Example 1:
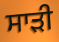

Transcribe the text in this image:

ਸਾੜੀ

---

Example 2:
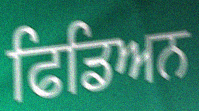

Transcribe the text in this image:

ਫਿਡਿਅਨ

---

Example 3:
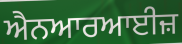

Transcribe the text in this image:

ਐਨਆਰਆਈਜ਼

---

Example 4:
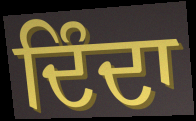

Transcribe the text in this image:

ਦਿੰਦਾ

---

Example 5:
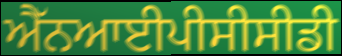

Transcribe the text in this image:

ਐੱਨਆਈਪੀਸੀਸੀਡੀ